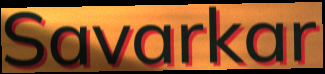
Savarkar